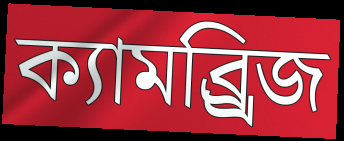
ক্যামব্র্রিজ